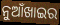
ନୁଆଁଖାଇର